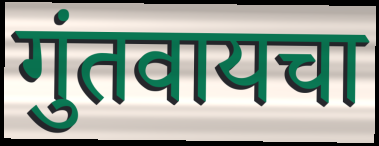
गुंतवायचा